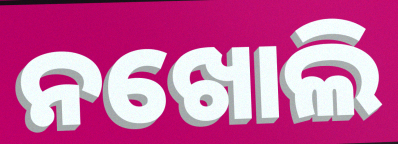
ନଖୋଲି